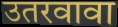
उतरवावा